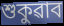
শুকুৱাব